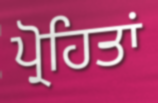
ਪ੍ਰੋਹਿਤਾਂ